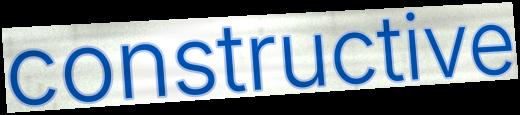
constructive